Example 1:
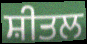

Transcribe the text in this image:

ਸ਼ੀਤਲ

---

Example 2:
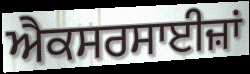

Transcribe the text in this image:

ਐਕਸਰਸਾਈਜ਼ਾਂ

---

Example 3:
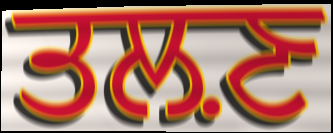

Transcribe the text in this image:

ਤਲ਼ਣ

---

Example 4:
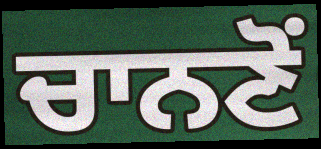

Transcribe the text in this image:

ਚਾਨਣੋਂ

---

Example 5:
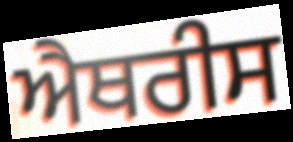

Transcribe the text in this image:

ਐਥਰੀਸ